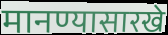
मानण्यासारखे